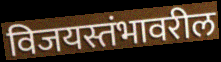
विजयस्तंभावरील